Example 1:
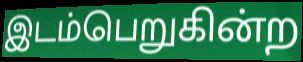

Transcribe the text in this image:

இடம்பெறுகின்ற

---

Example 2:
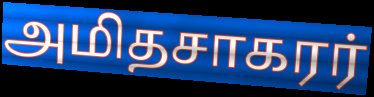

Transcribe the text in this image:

அமிதசாகரர்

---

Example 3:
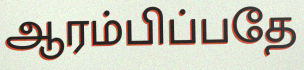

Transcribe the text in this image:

ஆரம்பிப்பதே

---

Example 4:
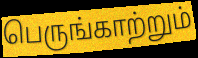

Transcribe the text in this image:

பெருங்காற்றும்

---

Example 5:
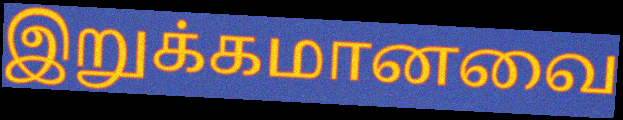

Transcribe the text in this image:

இறுக்கமானவை